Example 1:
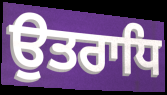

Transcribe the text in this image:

ਉਤਰਾਧਿ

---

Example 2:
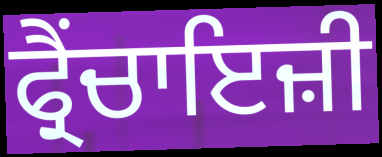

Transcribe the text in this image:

ਫ੍ਰੈਂਚਾਇਜ਼ੀ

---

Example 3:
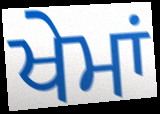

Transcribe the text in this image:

ਖੇਮਾਂ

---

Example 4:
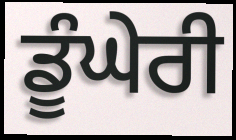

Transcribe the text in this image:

ਡੂੰਘੇਰੀ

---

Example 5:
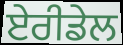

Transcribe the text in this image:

ਏਰੀਡੇਲ